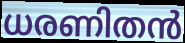
ധരണിതൻ